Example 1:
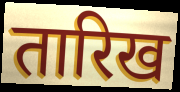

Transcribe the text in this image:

तारिख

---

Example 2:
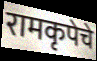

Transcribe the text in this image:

रामकृपेचे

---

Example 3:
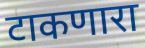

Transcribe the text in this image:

टाकणारा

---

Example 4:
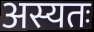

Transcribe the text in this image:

अस्यतः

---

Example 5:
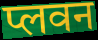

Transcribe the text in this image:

प्लवन